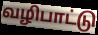
வழிபாட்டு